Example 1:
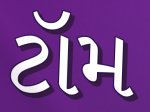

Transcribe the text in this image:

ટૉમ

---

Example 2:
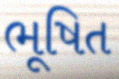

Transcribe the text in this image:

ભૂષિત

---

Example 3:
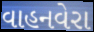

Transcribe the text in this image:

વાહનવેરા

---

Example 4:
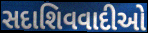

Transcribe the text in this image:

સદાશિવવાદીઓ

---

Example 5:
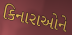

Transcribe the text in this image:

કિનારાઓને